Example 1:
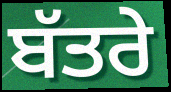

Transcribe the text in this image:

ਬੱਤਰੇ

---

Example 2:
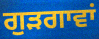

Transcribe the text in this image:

ਗੁੜਗਾਵਾਂ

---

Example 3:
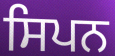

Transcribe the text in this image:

ਸਿਪਨ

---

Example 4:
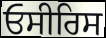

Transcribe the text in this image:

ਓਸੀਰਿਸ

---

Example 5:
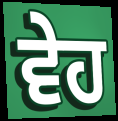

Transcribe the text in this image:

ਵੇਹ